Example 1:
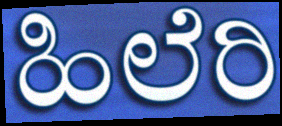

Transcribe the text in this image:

ಹಿಲೆರಿ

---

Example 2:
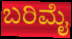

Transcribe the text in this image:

ಬರಿಮೈ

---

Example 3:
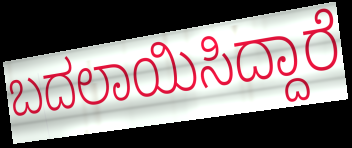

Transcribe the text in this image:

ಬದಲಾಯಿಸಿದ್ದಾರೆ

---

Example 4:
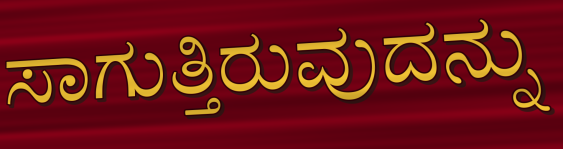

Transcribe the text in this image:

ಸಾಗುತ್ತಿರುವುದನ್ನು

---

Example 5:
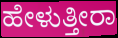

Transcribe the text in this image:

ಹೇಳುತ್ತೀರಾ